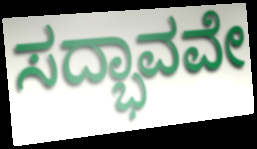
ಸದ್ಭಾವವೇ